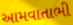
આમવાતાભી